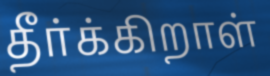
தீர்க்கிறாள்